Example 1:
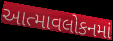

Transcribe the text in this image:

આત્માવલોકનમાં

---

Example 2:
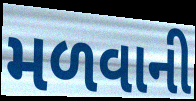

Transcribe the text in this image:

મળવાની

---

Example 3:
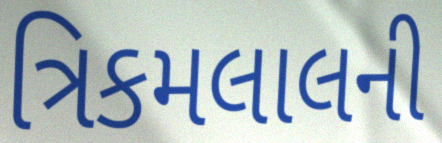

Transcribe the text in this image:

ત્રિકમલાલની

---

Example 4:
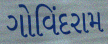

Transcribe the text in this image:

ગોવિંદરામ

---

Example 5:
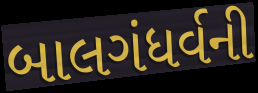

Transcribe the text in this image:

બાલગંધર્વની